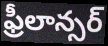
ఫ్రీలాన్సర్